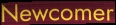
Newcomer